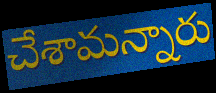
చేశామన్నారు